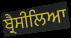
ਬ੍ਰੈਸੀਲਿਆ